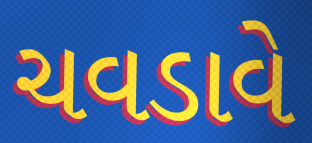
ચવડાવે